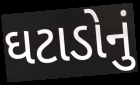
ઘટાડોનું